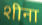
शीना